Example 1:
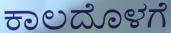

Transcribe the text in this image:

ಕಾಲದೊಳಗೆ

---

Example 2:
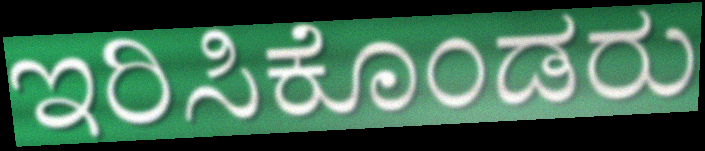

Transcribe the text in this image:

ಇರಿಸಿಕೊಂಡರು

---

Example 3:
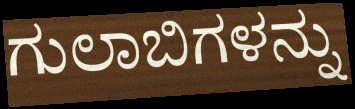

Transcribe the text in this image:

ಗುಲಾಬಿಗಳನ್ನು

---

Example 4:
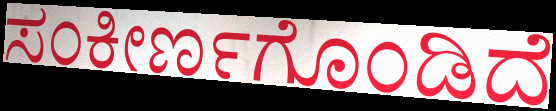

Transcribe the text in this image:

ಸಂಕೀರ್ಣಗೊಂಡಿದೆ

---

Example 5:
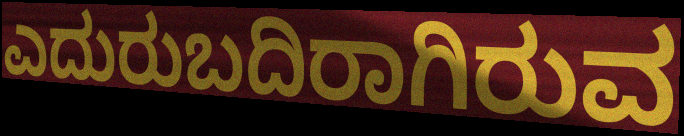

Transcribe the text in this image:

ಎದುರುಬದಿರಾಗಿರುವ